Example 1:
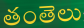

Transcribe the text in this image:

తంతెలు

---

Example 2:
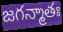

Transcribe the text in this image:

జగన్మాతః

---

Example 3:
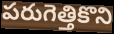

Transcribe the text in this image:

పరుగెత్తికొని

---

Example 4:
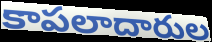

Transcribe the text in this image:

కాపలాదారుల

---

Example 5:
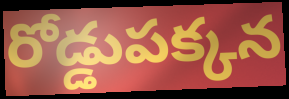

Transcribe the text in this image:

రోడ్డుపక్కన